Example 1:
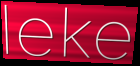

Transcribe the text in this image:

leke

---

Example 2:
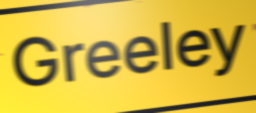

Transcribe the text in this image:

Greeley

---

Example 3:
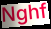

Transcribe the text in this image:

Nghf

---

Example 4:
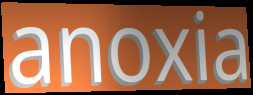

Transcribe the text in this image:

anoxia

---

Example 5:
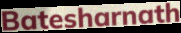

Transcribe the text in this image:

Batesharnath